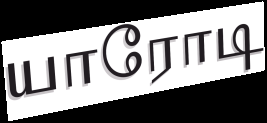
யாரோடி